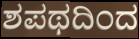
ಶಪಥದಿಂದ